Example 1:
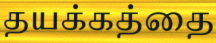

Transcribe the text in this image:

தயக்கத்தை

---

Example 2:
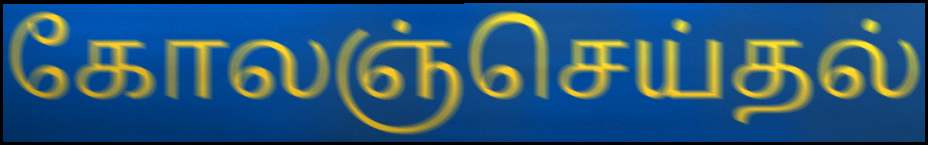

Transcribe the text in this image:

கோலஞ்செய்தல்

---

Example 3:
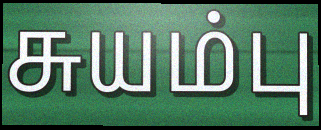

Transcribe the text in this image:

சுயம்பு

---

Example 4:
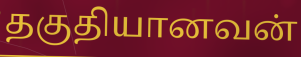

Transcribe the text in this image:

தகுதியானவன்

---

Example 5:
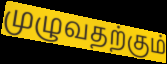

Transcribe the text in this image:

முழுவதற்கும்